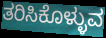
ತರಿಸಿಕೊಳ್ಳುವ